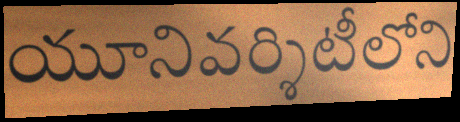
యూనివర్శిటీలోని